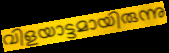
വിളയാട്ടമായിരുന്നു